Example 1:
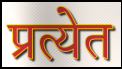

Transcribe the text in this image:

प्रत्येत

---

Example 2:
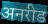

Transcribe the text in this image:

अनरीड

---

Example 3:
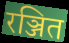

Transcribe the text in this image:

रञ्जित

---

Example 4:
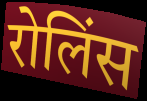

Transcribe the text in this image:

रोलिंस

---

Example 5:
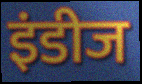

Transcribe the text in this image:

इंडीज